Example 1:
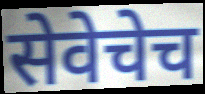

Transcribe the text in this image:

सेवेचेच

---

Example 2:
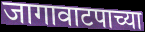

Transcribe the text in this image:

जागावाटपाच्या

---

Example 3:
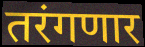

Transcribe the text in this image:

तरंगणार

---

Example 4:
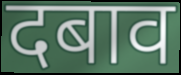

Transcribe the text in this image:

दबाव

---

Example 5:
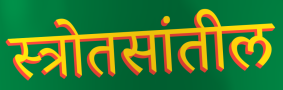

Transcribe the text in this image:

स्त्रोतसांतील